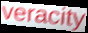
veracity